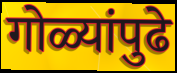
गोळ्यांपुढे